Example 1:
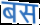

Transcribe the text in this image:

बस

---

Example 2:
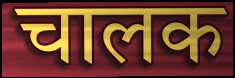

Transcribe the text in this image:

चालक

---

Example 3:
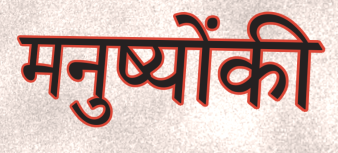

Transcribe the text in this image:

मनुष्योंकी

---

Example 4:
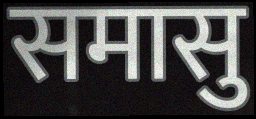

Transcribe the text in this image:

समासु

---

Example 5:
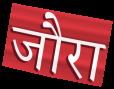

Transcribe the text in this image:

जौरा